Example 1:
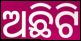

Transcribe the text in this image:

ଅଛିଟି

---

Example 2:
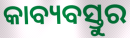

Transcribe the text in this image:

କାବ୍ୟବସ୍ତୁର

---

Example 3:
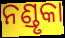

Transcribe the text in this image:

ନଣ୍ଡୃକା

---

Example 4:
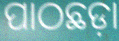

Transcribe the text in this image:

ପାଠଛଡ଼ା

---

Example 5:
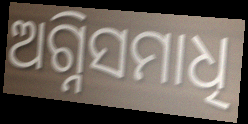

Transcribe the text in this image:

ଅଗ୍ନିସମାଧି